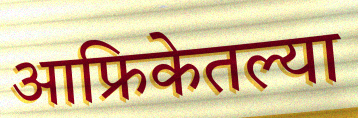
आफ्रिकेतल्या